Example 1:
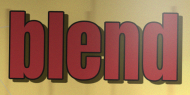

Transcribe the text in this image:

blend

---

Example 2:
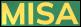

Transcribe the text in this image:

MISA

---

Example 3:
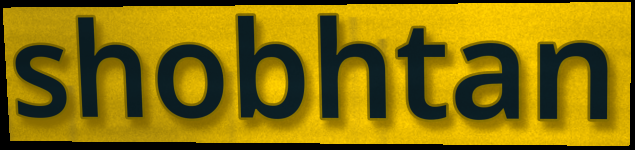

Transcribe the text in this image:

shobhtan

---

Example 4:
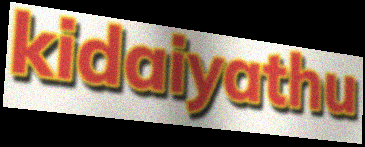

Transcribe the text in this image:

kidaiyathu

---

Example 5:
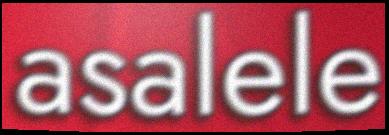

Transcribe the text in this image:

asalele